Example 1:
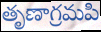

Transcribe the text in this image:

తృణాగ్రమపి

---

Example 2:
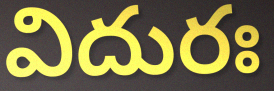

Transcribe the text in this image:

విదురః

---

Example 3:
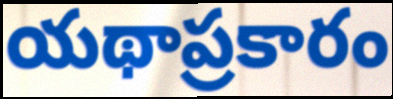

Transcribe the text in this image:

యథాప్రకారం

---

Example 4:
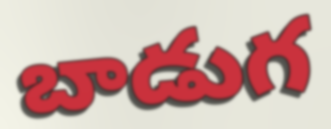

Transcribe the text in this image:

బాడుగ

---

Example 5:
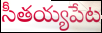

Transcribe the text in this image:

సీతయ్యపేట